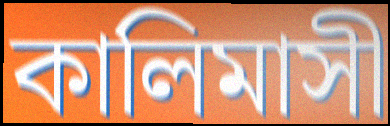
কালিমাসী